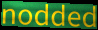
nodded